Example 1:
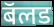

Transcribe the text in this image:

बॅलड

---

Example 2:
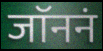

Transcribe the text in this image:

जॉननं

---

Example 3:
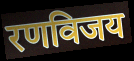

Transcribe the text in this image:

रणविजय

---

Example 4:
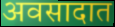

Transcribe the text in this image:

अवसादात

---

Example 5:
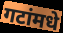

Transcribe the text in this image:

गटांमधे